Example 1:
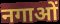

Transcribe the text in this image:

नगाओं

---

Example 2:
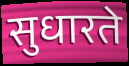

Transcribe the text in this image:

सुधारते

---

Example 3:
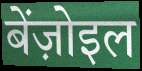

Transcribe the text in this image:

बेंज़ोइल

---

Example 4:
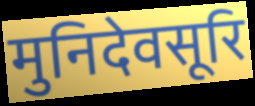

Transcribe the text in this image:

मुनिदेवसूरि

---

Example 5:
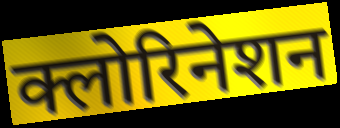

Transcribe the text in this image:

क्लोरिनेशन